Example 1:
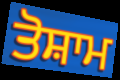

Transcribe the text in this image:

ਤੋਸ਼ਾਮ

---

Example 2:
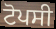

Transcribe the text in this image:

ਟੋਪਸੀ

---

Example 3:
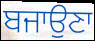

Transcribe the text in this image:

ਬਜਾਉਣਾ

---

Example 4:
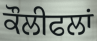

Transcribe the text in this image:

ਕੌਲੀਫਲਾਂ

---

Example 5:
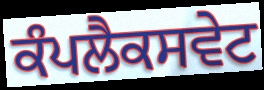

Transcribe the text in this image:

ਕੰਪਲੈਕਸਵੇਟ